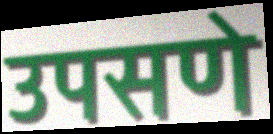
उपसणे